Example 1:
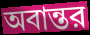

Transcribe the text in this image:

অবান্তর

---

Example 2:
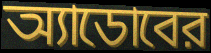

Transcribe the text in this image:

অ্যাডোবের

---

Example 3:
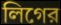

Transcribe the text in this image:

লিগের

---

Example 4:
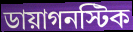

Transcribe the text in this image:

ডায়াগনস্টিক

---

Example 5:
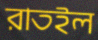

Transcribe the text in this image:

রাতইল